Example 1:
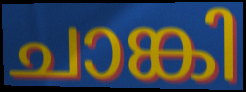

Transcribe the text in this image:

ചാങ്കി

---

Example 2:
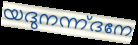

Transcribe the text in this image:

യദുനന്ന്ദനേ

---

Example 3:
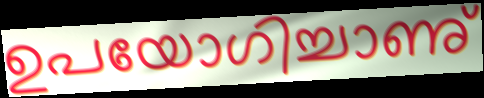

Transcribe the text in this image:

ഉപയോഗിച്ചാണു്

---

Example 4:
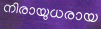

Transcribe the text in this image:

നിരായുധരായ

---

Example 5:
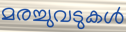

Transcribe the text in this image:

മരച്ചുവടുകൾ